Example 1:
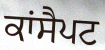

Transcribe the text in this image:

ਕਾਂਸੈਪਟ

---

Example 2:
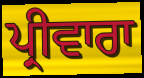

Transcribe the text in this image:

ਪ੍ਰੀਵਾਰਾ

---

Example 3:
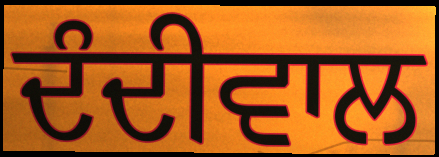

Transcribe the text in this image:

ਦੰਦੀਵਾਲ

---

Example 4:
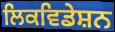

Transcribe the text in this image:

ਲਿਕਵਿਡੇਸ਼ਨ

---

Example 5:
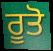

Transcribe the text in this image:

ਰੂਤੋ